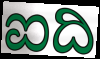
ಐದಿ